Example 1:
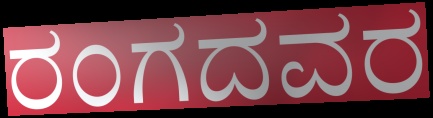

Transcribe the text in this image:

ರಂಗದವರ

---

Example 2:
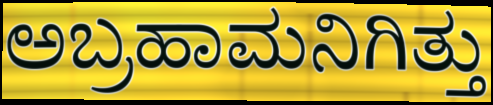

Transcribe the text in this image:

ಅಬ್ರಹಾಮನಿಗಿತ್ತು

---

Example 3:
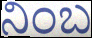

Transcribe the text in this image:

ನಿಂಬ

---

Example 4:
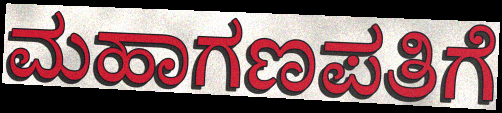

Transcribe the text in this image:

ಮಹಾಗಣಪತಿಗೆ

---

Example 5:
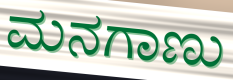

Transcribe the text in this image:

ಮನಗಾಣು